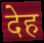
देह